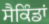
ਸੈਕਿੰਡਾਂ